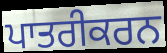
ਪਾਤਰੀਕਰਨ